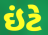
ઇંટે